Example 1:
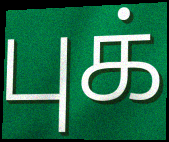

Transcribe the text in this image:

புக்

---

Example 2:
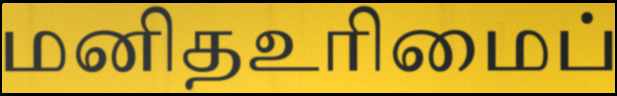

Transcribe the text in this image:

மனிதஉரிமைப்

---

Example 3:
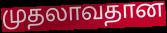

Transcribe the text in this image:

முதலாவதான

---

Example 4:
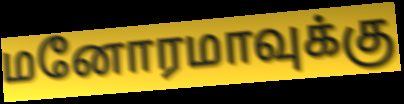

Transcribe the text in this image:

மனோரமாவுக்கு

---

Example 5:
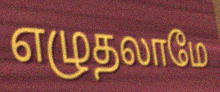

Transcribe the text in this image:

எழுதலாமே